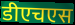
डीएचएस